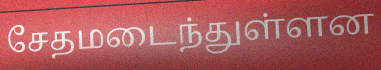
சேதமடைந்துள்ளன